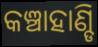
କଞ୍ଚାହାଣ୍ଡି